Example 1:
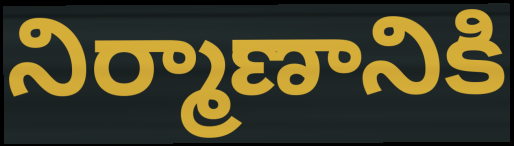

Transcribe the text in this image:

నిర్మాణానికి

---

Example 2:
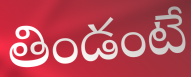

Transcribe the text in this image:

తిండంటే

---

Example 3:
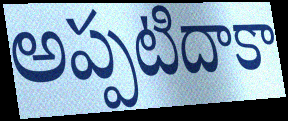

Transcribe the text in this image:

అప్పటిదాకా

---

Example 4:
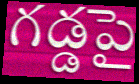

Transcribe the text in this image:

గడ్డపై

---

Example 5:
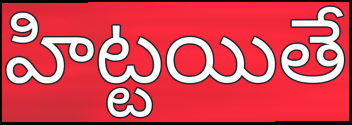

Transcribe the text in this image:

హిట్టయితే